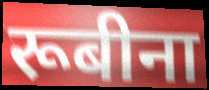
रूबीना